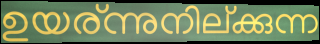
ഉയര്ന്നുനില്ക്കുന്ന